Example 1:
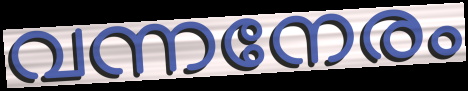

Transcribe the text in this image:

വന്നനേരം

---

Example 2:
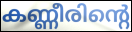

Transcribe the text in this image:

കണ്ണീരിന്റെ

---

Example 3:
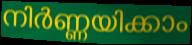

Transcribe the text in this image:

നിർണ്ണയിക്കാം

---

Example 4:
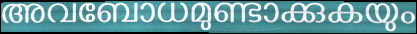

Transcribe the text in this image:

അവബോധമുണ്ടാക്കുകയും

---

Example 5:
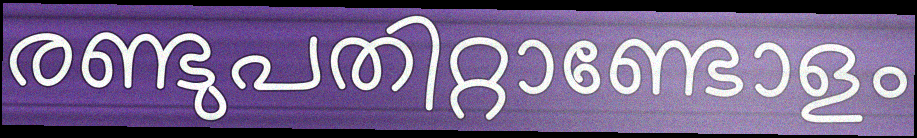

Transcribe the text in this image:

രണ്ടുപതിറ്റാണ്ടോളം